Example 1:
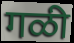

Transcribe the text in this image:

गळी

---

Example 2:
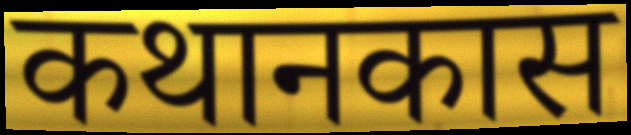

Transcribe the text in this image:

कथानकास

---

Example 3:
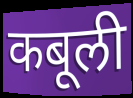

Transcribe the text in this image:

कबूली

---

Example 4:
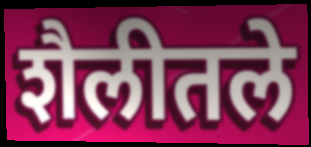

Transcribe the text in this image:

शैलीतले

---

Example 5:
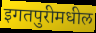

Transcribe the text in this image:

इगतपुरीमधील